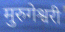
मुरुगेश्वरी